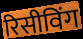
रिसीविंग